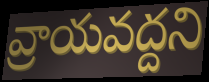
వ్రాయవద్దని